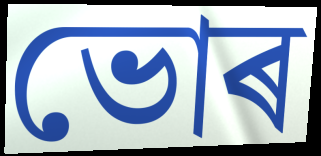
ভোৰ